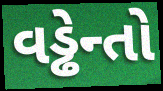
વડ્ઢેન્તો